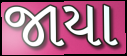
જાયા